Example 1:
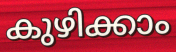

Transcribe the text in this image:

കുഴിക്കാം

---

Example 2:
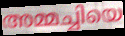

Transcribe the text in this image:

അമ്മച്ചിയെ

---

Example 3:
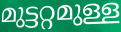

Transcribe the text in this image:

മുട്ടറ്റമുള്ള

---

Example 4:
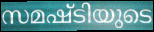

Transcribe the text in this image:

സമഷ്ടിയുടെ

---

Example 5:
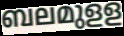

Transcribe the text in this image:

ബലമുളള